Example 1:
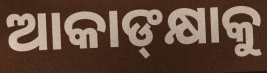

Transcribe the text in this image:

ଆକାଙ୍‍କ୍ଷାକୁ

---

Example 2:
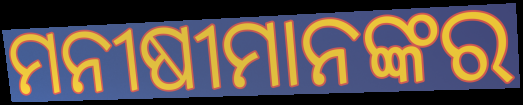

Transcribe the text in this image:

ମନୀଷୀମାନଙ୍କର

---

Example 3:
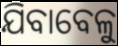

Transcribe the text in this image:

ଯିବାବେଳୁ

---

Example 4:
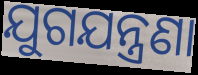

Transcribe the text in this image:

ଯୁଗଯନ୍ତ୍ରଣା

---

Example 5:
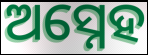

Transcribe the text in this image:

ଅସ୍ନେହ